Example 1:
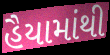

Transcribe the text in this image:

હૈયામાંથી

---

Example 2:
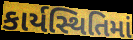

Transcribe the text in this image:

કાર્યસ્થિતિમાં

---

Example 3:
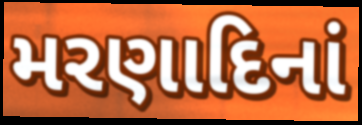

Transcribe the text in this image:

મરણાદિનાં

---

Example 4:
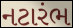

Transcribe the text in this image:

નટારંભ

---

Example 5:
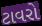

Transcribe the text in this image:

ટાવરો